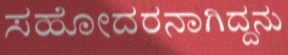
ಸಹೋದರನಾಗಿದ್ದನು